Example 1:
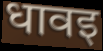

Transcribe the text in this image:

धावइ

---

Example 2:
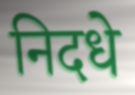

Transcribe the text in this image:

निदधे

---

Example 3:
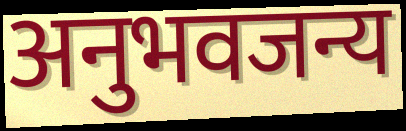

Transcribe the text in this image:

अनुभवजन्य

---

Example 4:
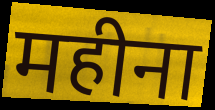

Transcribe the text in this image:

महीना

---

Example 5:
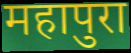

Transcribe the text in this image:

महापुरा